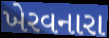
ખેરવનારા